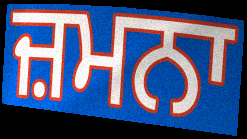
ਜ਼ਮਨਾ